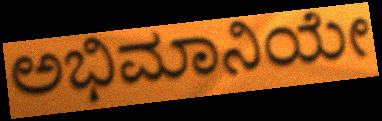
ಅಭಿಮಾನಿಯೇ